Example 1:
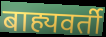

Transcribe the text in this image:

बाह्यवर्ती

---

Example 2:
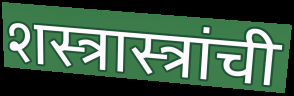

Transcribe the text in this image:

शस्त्रास्त्रांची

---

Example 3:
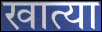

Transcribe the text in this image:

खात्या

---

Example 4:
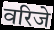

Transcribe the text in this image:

वरिजे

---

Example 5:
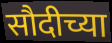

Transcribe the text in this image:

सौदीच्या